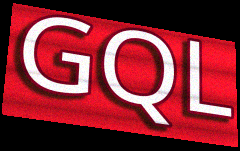
GQL